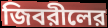
জিবরীলের